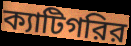
ক্যাটিগরির